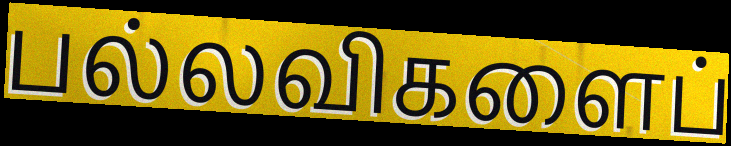
பல்லவிகளைப்